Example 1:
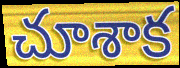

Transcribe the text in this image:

చూశాక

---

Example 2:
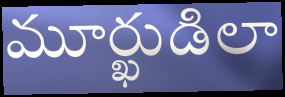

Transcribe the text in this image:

మూర్ఖుడిలా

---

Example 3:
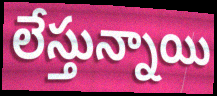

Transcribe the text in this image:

లేస్తున్నాయి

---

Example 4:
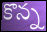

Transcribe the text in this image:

కొన్న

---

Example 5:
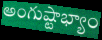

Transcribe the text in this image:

అంగుష్టాభ్యాం